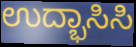
ಉದ್ಭಾಸಿಸಿ